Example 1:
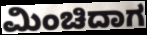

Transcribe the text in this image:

ಮಿಂಚಿದಾಗ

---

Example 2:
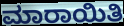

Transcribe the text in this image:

ಮಾರಾಯಿತಿ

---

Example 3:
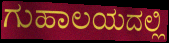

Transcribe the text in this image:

ಗುಹಾಲಯದಲ್ಲಿ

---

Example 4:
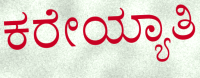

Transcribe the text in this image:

ಕರೇಯ್ಯಾತಿ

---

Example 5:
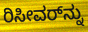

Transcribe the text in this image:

ರಿಸೀವರ್‌ನ್ನು